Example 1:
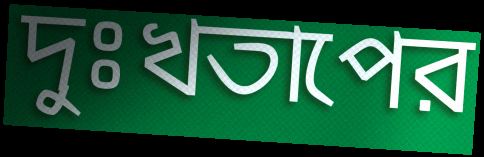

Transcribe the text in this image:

দুঃখতাপের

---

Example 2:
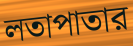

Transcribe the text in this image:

লতাপাতার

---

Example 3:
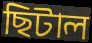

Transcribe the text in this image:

ছিটাল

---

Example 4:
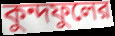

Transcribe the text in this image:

কুন্দফুলের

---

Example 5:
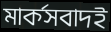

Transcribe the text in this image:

মার্কসবাদই